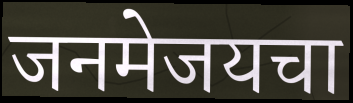
जनमेजयचा